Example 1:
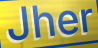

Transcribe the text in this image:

Jher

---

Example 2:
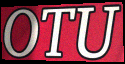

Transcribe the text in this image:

OTU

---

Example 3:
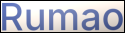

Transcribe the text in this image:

Rumao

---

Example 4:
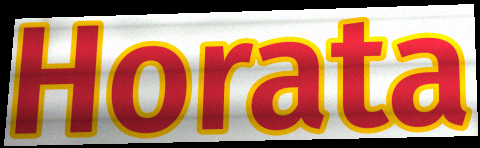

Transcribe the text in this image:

Horata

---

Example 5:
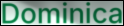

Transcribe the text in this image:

Dominica